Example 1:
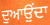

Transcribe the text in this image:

ਦੁਆਉਂਦਾ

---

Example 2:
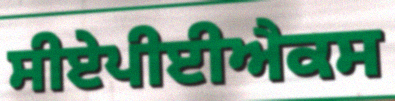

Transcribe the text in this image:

ਸੀਏਪੀਈਐਕਸ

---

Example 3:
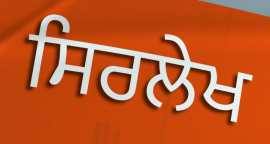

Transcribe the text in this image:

ਸਿਰਲੇਖ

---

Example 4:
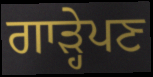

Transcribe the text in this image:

ਗਾੜ੍ਹੇਪਣ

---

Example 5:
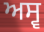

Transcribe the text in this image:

ਅਸ੍ਵ